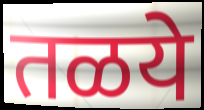
तळये